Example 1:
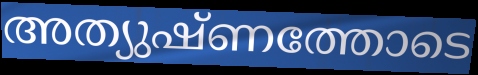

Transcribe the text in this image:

അത്യുഷ്ണത്തോടെ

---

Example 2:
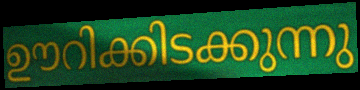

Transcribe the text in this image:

ഊറിക്കിടക്കുന്നു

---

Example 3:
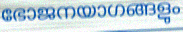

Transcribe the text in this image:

ഭോജനയാഗങ്ങളും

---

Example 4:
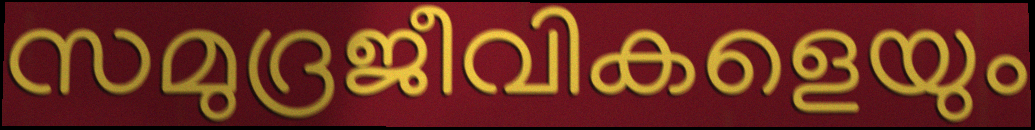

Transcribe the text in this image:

സമുദ്രജീവികളെയും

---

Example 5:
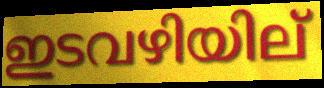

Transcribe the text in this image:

ഇടവഴിയില്